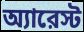
অ্যারেস্ট